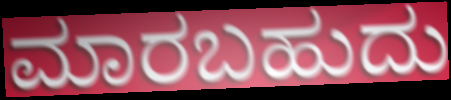
ಮಾರಬಹುದು